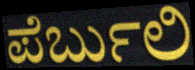
ಪೆರ್ಬುಲಿ